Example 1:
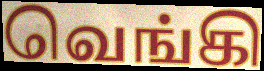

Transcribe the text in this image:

வெங்கி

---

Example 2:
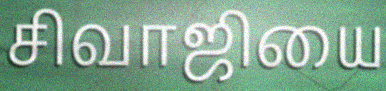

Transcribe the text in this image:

சிவாஜியை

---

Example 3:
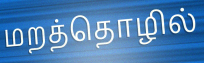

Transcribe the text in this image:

மறத்தொழில்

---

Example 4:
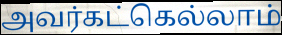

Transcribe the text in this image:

அவர்கட்கெல்லாம்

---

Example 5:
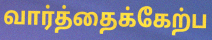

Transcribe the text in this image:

வார்த்தைக்கேற்ப